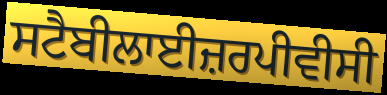
ਸਟੈਬੀਲਾਈਜ਼ਰਪੀਵੀਸੀ